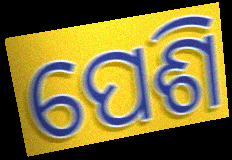
ପେଶି